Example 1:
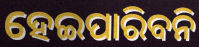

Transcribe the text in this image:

ହେଇପାରିବନି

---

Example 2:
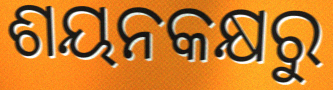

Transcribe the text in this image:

ଶୟନକକ୍ଷରୁ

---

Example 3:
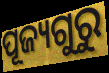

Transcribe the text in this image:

ପୂଜ୍ୟଗୁରୁ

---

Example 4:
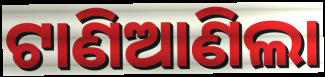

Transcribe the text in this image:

ଟାଣିଆଣିଲା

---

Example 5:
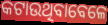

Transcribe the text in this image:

କଟାଉଥିବାବେଳେ